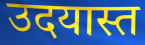
उदयास्त